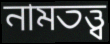
নামতত্ত্ব